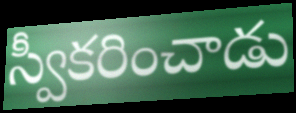
స్వీకరించాడు